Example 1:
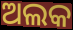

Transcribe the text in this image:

ଅଲକ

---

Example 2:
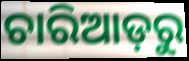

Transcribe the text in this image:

ଚାରିଆଡ଼ରୁ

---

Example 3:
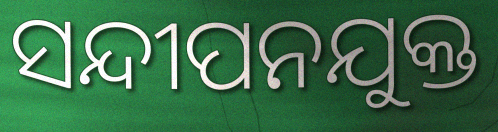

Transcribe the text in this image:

ସନ୍ଦୀପନଯୁକ୍ତ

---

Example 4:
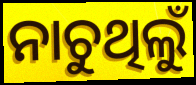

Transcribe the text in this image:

ନାଚୁଥିଲୁଁ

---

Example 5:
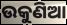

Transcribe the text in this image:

ଉକୁଣିଆ